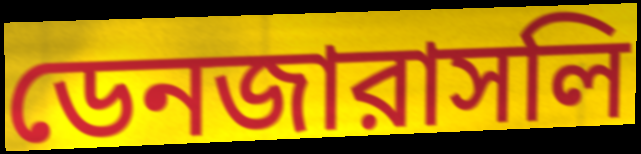
ডেনজারাসলি